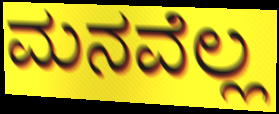
ಮನವೆಲ್ಲ